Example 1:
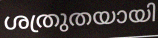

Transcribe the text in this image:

ശത്രുതയായി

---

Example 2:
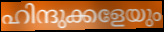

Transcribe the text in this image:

ഹിന്ദുക്കളേയും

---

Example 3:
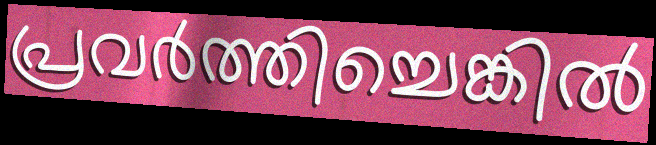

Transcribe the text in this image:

പ്രവർത്തിച്ചെങ്കിൽ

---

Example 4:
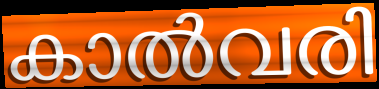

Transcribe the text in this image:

കാൽവരി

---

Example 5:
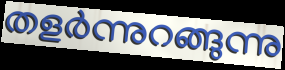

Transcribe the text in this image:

തളർന്നുറങ്ങുന്നു